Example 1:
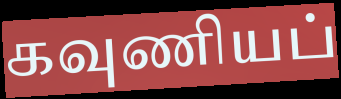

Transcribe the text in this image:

கவுணியப்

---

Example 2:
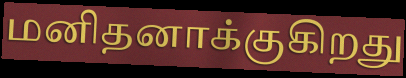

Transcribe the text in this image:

மனிதனாக்குகிறது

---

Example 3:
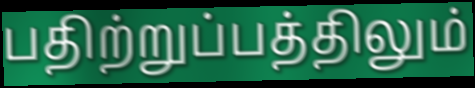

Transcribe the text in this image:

பதிற்றுப்பத்திலும்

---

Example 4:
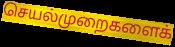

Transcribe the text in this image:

செயல்முறைகளைக்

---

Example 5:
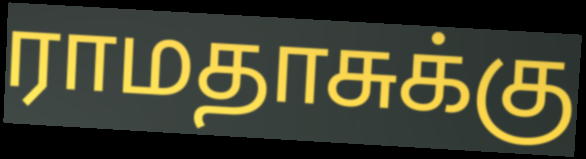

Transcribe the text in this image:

ராமதாசுக்கு